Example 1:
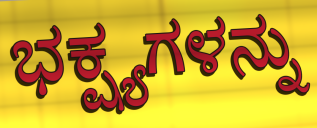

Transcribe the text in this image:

ಭಕ್ಷ್ಯಗಳನ್ನು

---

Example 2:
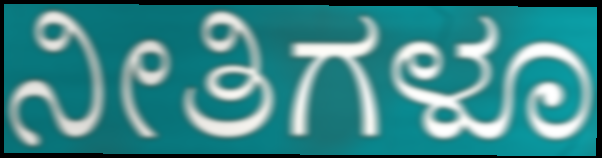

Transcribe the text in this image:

ನೀತಿಗಳೂ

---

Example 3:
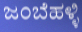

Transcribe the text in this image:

ಜಂಬೆಹಳ್ಳಿ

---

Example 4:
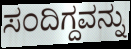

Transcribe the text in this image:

ಸಂದಿಗ್ದವನ್ನು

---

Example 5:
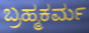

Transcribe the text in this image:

ಬ್ರಹ್ಮಕರ್ಮ